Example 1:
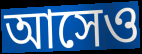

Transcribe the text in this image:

আসেও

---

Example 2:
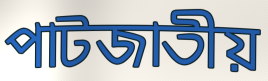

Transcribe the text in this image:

পাটজাতীয়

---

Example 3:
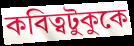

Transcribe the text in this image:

কবিত্বটুকুকে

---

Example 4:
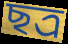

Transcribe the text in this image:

ছত্র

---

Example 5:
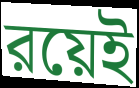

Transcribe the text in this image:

রয়েই